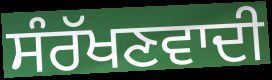
ਸੰਰੱਖਣਵਾਦੀ